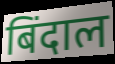
बिंदाल